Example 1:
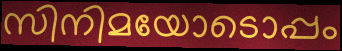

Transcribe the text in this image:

സിനിമയോടൊപ്പം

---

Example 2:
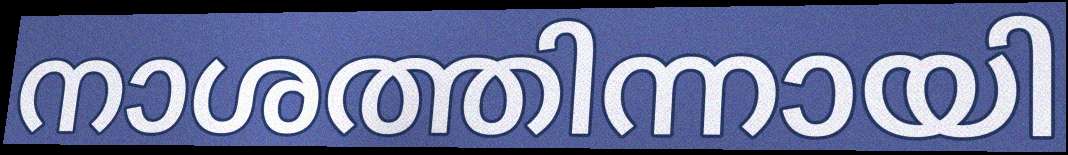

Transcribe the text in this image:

നാശത്തിന്നായി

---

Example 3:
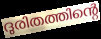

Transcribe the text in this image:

ദുരിതത്തിന്റെ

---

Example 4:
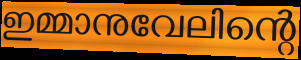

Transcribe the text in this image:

ഇമ്മാനുവേലിന്റെ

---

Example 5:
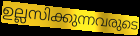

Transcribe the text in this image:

ഉല്ലസിക്കുന്നവരുടെ